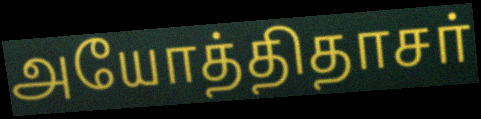
அயோத்திதாசர்